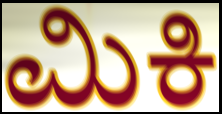
ಮಿಕಿ